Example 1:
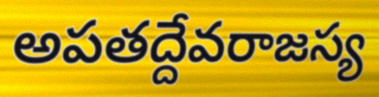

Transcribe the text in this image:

అపతద్దేవరాజస్య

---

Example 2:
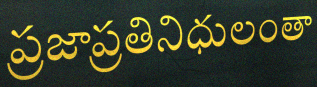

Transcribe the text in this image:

ప్రజాప్రతినిధులంతా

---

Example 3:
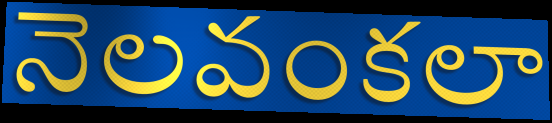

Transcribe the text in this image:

నెలవంకలా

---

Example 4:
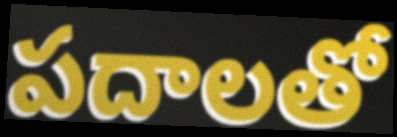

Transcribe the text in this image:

పదాలతో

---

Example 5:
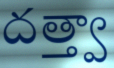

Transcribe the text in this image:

దత్త్వా